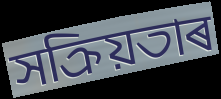
সক্ৰিয়তাৰ